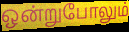
ஒன்றுபோலும்